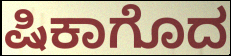
ಷಿಕಾಗೊದ